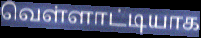
வெள்ளாட்டியாக